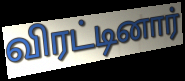
விரட்டினார்